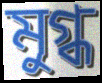
মুগ্ধ